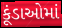
કૂંડાઓમાં